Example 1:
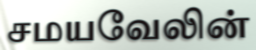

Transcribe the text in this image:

சமயவேலின்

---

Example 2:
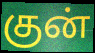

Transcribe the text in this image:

குன்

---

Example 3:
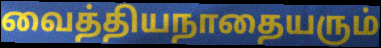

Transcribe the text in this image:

வைத்தியநாதையரும்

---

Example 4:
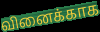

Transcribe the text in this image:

வினைக்காக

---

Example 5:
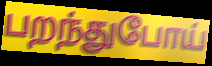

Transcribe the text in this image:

பறந்துபோய்